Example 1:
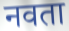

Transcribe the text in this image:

नवता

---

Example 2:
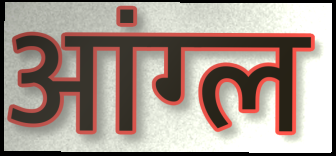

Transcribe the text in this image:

आंग्ल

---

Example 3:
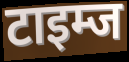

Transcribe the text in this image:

टाइम्ज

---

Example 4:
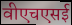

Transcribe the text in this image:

वीएचएसई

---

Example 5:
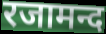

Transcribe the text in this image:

रजामन्द